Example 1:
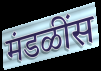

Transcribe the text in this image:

मंडळींस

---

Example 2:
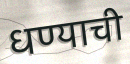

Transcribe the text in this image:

धण्याची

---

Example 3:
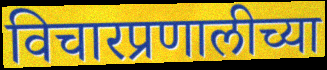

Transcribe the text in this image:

विचारप्रणालीच्या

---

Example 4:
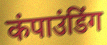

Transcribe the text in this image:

कंपाउंडिंग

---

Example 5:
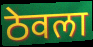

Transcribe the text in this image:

ठेवला